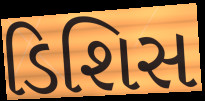
ડિશિસ